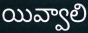
యివ్వాలి